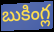
బుకింగ్ల